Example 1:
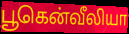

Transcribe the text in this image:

பூகென்வீலியா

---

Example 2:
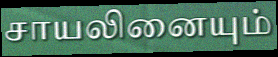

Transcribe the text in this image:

சாயலினையும்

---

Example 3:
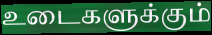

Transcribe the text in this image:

உடைகளுக்கும்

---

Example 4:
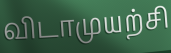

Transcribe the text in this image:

விடாமுயற்சி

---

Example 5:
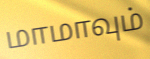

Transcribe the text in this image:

மாமாவும்